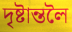
দৃষ্টান্তলৈ